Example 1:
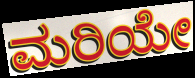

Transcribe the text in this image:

ಮರಿಯೇ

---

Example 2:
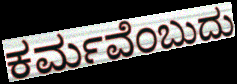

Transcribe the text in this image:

ಕರ್ಮವೆಂಬುದು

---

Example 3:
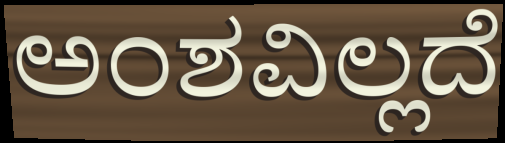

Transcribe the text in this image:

ಅಂಶವಿಲ್ಲದೆ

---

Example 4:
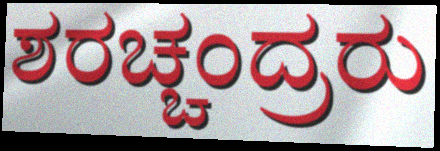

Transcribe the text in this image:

ಶರಚ್ಚಂದ್ರರು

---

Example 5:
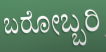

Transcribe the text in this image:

ಬರೋಬ್ಬರಿ